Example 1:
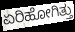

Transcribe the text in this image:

ಏರಿಹೋಗಿತ್ತು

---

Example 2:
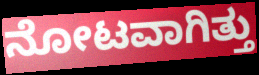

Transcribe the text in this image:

ನೋಟವಾಗಿತ್ತು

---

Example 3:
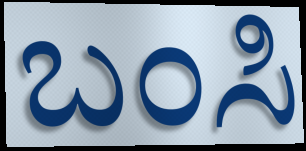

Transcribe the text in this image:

ಬಂಸಿ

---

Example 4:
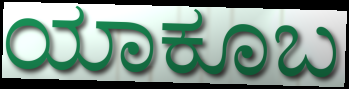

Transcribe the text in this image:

ಯಾಕೂಬ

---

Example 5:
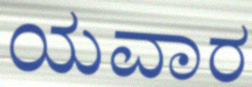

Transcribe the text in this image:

ಯವಾರ